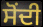
ਸੋਂਦੀ